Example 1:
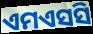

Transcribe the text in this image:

ଏମଏସସି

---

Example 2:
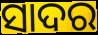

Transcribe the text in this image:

ସାଦର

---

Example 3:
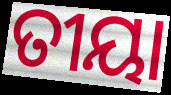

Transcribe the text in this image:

ତୀୟା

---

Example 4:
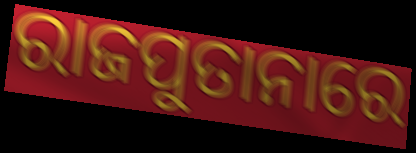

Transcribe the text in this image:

ରାଜପୁତାନାରେ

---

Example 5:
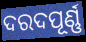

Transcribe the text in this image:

ଦରଦପୂର୍ଣ୍ଣ